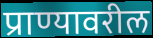
प्राण्यावरील